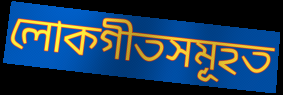
লোকগীতসমূহত